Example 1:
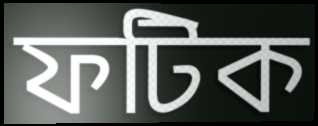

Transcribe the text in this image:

ফটিক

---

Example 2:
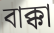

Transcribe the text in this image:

বাক্কা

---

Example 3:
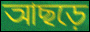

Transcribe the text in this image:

আছড়ে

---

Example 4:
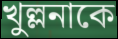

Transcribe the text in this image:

খুল্লনাকে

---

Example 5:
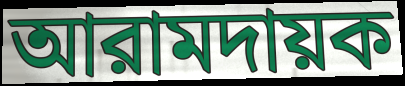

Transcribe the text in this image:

আরামদায়ক